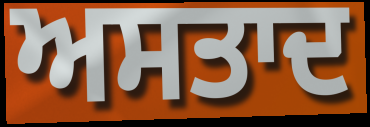
ਅਸਤਾਦ